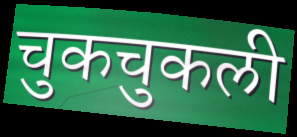
चुकचुकली